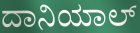
ದಾನಿಯಾಲ್